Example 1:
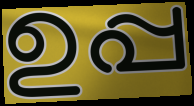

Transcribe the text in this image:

ഉപ്പ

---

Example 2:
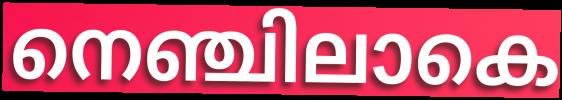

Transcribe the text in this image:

നെഞ്ചിലാകെ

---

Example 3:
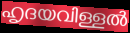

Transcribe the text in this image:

ഹൃദയവിള്ളൽ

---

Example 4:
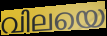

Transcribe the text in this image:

വിലയെ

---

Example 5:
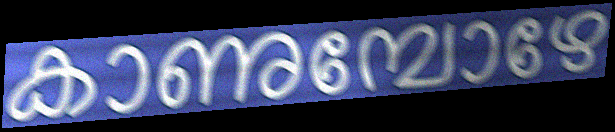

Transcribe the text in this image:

കാണുമ്പോഴേ